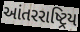
આંતરરાષ્ટ્રિય